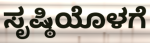
ಸೃಷ್ಠಿಯೊಳಗೆ